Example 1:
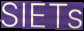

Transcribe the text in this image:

SIETs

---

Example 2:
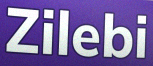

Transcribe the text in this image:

Zilebi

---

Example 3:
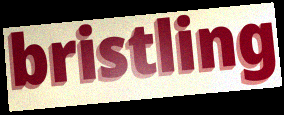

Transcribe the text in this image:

bristling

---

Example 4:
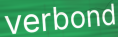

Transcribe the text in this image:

verbond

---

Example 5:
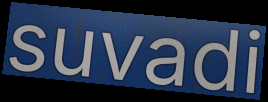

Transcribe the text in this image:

suvadi